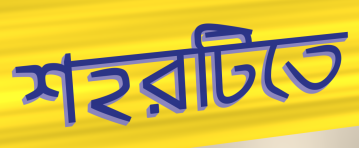
শহরটিতে